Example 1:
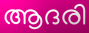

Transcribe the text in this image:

ആദരി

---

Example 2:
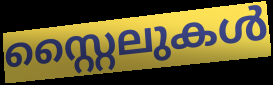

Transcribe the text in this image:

സ്റ്റൈലുകൾ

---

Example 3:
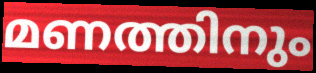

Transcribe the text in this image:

മണത്തിനും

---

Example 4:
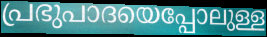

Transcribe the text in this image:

പ്രഭുപാദയെപ്പോലുള്ള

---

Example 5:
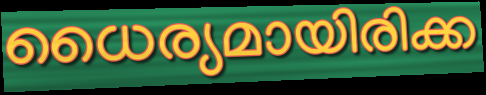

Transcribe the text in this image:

ധൈര്യമായിരിക്ക